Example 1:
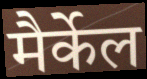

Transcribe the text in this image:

मैर्केल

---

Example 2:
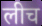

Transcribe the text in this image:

लीच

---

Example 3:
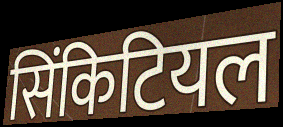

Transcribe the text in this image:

सिंकिटियल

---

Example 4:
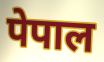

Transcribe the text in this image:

पेपाल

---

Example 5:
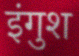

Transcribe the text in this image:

इंगुश